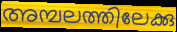
അമ്പലത്തിലേക്കു